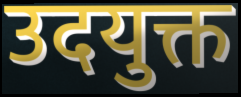
उदयुक्त